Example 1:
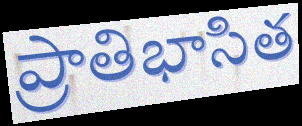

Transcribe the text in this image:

ప్రాతిభాసిత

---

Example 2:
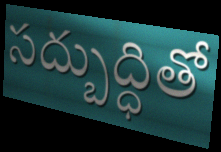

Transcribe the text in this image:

సద్బుద్ధితో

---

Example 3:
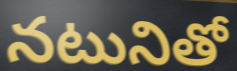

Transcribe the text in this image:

నటునితో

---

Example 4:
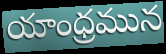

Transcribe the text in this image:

యాంధ్రమున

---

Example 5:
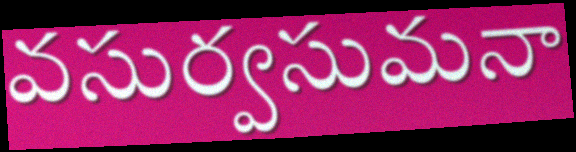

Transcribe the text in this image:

వసుర్వసుమనా